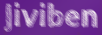
Jiviben